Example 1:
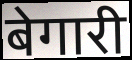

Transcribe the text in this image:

बेगारी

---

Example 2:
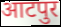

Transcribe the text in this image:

आटपुर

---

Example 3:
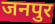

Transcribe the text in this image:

जनपुर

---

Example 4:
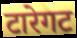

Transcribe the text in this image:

टारेगट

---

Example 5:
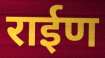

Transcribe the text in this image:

राईण